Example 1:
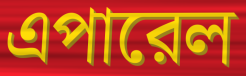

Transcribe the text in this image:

এপারেল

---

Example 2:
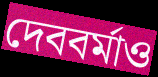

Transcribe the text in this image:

দেববর্মাও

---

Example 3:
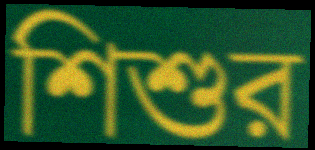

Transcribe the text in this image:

শিশুর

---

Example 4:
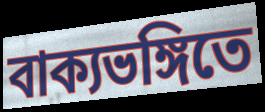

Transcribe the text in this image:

বাক্যভঙ্গিতে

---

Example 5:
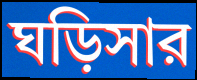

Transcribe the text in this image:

ঘড়িসার